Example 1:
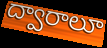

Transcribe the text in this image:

ద్వారాలూ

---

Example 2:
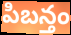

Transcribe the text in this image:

పిబన్తం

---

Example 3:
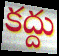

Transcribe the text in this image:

కద్దు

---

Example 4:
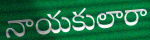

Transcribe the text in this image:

నాయకులారా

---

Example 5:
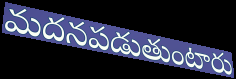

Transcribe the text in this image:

మదనపడుతుంటారు